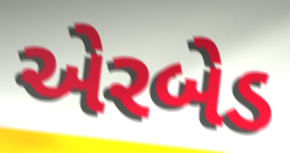
એરબેડ